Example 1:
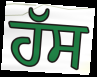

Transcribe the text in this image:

ਹੱਸ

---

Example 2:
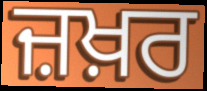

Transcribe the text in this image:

ਜ਼ਖ਼ਰ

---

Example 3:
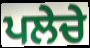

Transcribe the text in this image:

ਪਲੇਚੇ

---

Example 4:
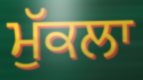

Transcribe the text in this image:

ਮੁੱਕਲਾ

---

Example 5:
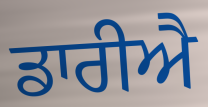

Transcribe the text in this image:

ਡਾਰੀਐ